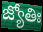
జ్యోతిః